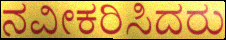
ನವೀಕರಿಸಿದರು